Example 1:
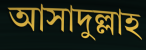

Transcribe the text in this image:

আসাদুল্লাহ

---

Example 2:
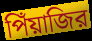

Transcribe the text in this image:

পিঁয়াজির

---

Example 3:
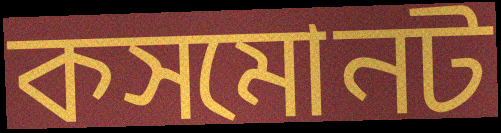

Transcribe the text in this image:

কসমোনট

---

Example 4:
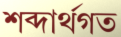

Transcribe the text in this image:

শব্দার্থগত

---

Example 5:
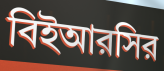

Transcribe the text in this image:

বিইআরসির